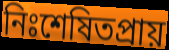
নিঃশেষিতপ্রায়